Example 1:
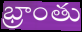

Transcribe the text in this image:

భ్రాంతు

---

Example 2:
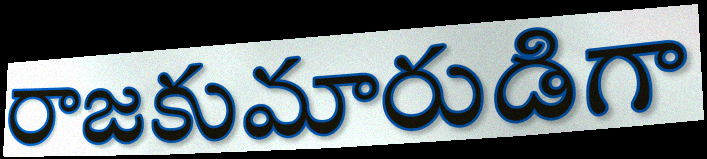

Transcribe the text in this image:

రాజకుమారుడిగా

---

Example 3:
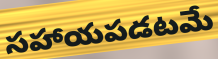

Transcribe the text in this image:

సహాయపడటమే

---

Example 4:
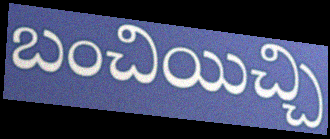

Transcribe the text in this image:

బంచియిచ్చి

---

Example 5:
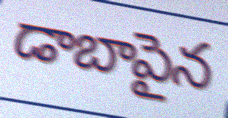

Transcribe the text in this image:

డాబాపైన